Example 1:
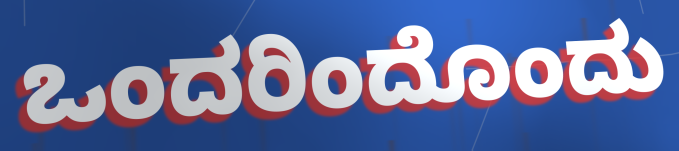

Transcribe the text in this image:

ಒಂದರಿಂದೊಂದು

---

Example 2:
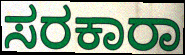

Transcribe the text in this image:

ಸರಕಾರಾ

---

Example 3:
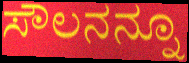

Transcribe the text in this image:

ಸೌಲನನ್ನೂ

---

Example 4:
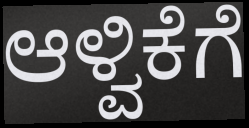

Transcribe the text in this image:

ಆಳ್ವಿಕೆಗೆ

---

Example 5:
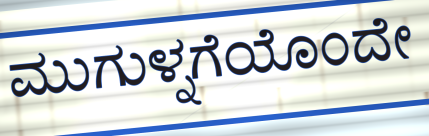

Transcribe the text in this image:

ಮುಗುಳ್ನಗೆಯೊಂದೇ